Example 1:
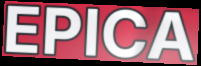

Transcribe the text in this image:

EPICA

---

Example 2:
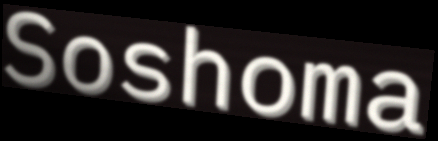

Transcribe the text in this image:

Soshoma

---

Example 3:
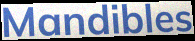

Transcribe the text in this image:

Mandibles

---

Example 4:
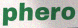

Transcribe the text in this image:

phero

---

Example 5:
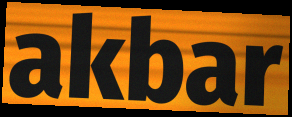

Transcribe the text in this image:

akbar